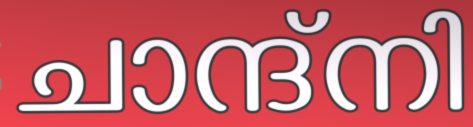
ചാന്ദ്നി